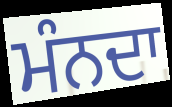
ਮੰਨਦਾ